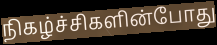
நிகழ்ச்சிகளின்போது